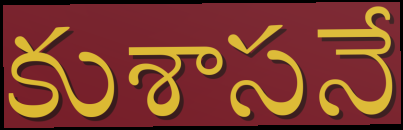
కుశాసనే